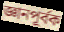
জ্ঞানপূর্বক